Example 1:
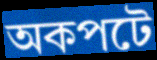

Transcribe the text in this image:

অকপটে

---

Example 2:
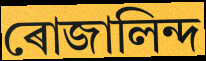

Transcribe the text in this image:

ৰোজালিন্দ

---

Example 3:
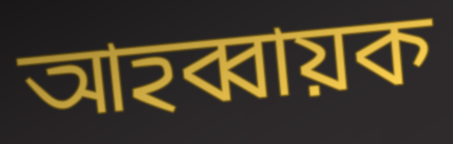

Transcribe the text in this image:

আহব্বায়ক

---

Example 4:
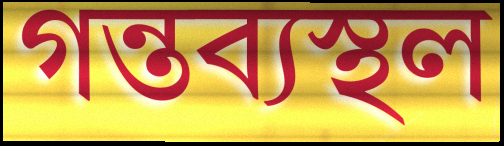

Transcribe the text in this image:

গন্তব্যস্থল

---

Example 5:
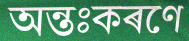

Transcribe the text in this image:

অন্তঃকৰণে